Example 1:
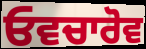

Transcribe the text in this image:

ਓਵਚਾਰੋਵ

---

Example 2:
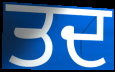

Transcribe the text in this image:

ਤਦ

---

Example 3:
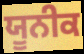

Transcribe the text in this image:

ਯੂਨੀਕ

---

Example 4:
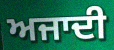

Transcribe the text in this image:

ਅਜਾਦੀ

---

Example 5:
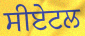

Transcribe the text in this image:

ਸੀਏਟਲ